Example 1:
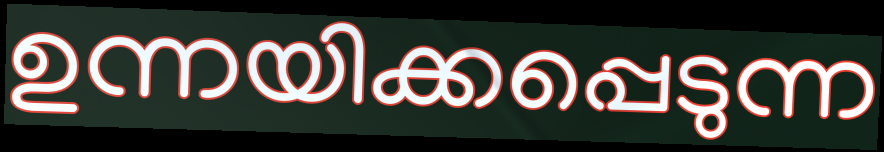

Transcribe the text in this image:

ഉന്നയിക്കപ്പെടുന്ന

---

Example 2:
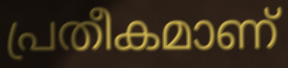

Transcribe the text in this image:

പ്രതീകമാണ്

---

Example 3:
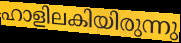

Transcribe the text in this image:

ഹാളിലകിയിരുന്നു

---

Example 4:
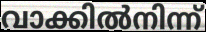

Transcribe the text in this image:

വാക്കിൽനിന്ന്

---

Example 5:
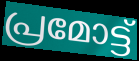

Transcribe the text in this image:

പ്രമോട്ട്